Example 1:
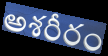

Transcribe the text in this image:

అశరీరం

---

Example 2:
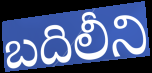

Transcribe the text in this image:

బదిలీని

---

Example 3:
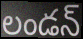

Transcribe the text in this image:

లండన్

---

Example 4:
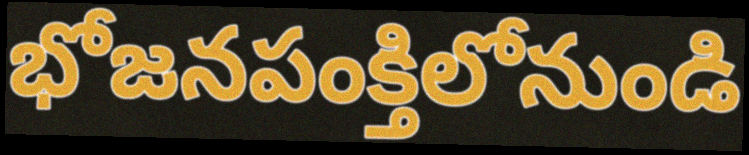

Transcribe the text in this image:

భోజనపంక్తిలోనుండి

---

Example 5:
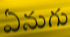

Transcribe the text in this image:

ఏనుగు